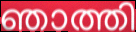
ഞാത്തി